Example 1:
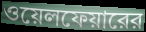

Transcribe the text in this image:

ওয়েলফেয়ারের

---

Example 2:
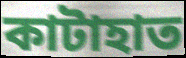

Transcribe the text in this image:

কাটাহাত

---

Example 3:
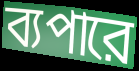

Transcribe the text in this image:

ব্যপারে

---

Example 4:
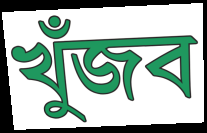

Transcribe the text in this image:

খুঁজব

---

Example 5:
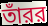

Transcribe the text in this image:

তাঁরর